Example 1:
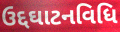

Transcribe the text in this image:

ઉદ્દઘાટનવિધિ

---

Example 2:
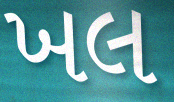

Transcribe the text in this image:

ખલ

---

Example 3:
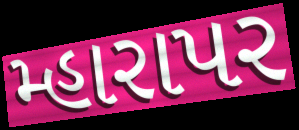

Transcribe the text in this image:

મ્હારાપર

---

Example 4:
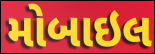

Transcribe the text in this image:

મોબાઇલ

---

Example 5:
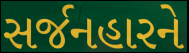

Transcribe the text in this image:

સર્જનહારને